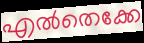
എൽതെക്കേ